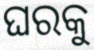
ଘରକୁ